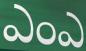
ఎంఎ